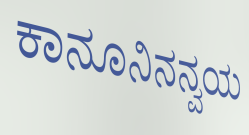
ಕಾನೂನಿನನ್ವಯ